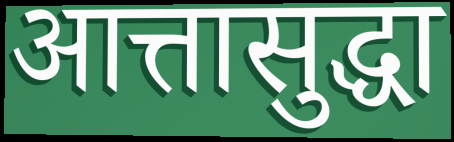
आत्तासुद्धा